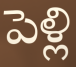
పెళ్లి